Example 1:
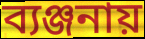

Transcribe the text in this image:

ব্যঞ্জনায়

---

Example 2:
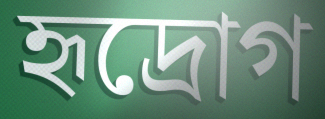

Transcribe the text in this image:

হৃদ্রোগ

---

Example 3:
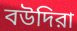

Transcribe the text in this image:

বউদিরা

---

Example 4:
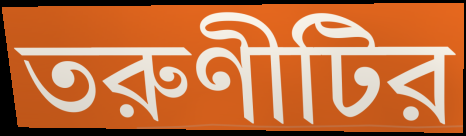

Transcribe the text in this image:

তরুণীটির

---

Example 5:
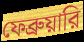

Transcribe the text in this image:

ফেব্রুয়ারি